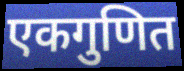
एकगुणित